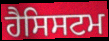
ਹੈਸਿਸਟਮ